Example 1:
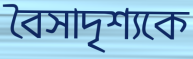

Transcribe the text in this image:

বৈসাদৃশ্যকে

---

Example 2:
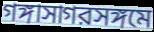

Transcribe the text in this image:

গঙ্গাসাগরসঙ্গমে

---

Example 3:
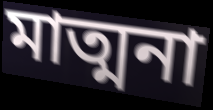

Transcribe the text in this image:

মাত্মনা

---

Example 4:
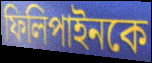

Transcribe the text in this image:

ফিলিপাইনকে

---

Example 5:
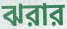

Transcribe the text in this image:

ঝরার